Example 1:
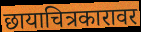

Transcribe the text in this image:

छायाचित्रकारावर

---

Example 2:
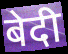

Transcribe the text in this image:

बेदी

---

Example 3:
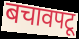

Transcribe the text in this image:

बचावपटू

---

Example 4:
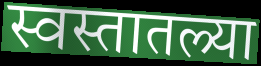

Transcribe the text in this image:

स्वस्तातल्या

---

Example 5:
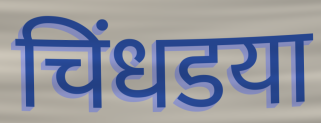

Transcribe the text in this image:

चिंधडया